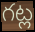
గట్ల